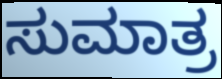
ಸುಮಾತ್ರ